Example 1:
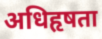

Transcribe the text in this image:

अधिहृषता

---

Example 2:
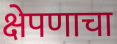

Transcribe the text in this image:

क्षेपणाचा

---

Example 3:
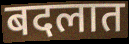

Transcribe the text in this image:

बदलात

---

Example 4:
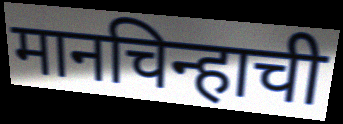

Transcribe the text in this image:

मानचिन्हाची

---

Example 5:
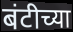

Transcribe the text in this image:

बंटीच्या